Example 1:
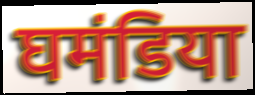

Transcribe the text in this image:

घमंडिया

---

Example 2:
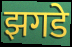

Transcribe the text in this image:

झगडे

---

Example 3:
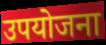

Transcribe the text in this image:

उपयोजना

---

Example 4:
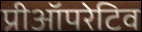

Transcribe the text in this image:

प्रीऑपरेटिव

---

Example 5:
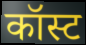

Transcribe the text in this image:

कॉस्ट